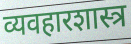
व्यवहारशास्त्र